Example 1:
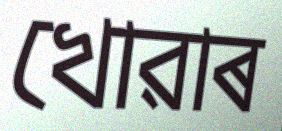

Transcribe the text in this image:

খোৱাৰ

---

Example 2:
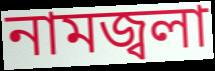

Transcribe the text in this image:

নামজ্বলা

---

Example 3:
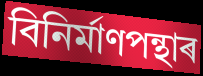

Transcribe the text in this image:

বিনিৰ্মাণপন্থাৰ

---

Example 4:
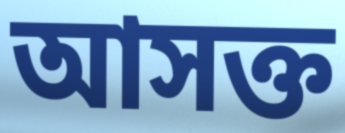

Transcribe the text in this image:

আসক্ত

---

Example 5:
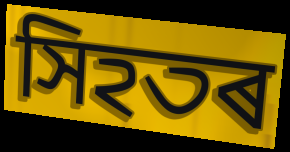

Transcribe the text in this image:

সিহতৰ